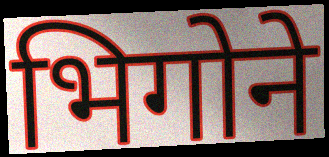
भिगोने